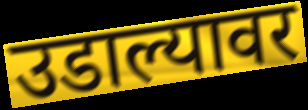
उडाल्यावर